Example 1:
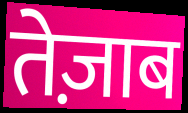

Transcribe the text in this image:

तेज़ाब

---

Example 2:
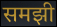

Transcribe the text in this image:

समझी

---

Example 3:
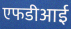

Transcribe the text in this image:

एफडीआई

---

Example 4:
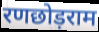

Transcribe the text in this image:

रणछोड़राम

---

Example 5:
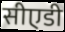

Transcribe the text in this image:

सीएडी